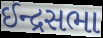
ઈન્દ્રસભા